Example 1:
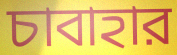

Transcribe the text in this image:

চাবাহার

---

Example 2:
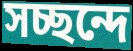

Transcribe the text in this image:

সচ্ছন্দে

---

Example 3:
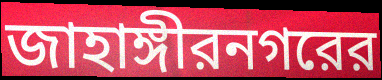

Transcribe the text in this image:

জাহাঙ্গীরনগরের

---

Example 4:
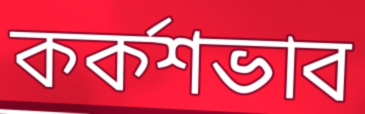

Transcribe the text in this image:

কর্কশভাব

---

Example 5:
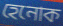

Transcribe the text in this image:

হেনোক